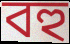
বহু